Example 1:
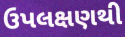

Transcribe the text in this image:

ઉપલક્ષણથી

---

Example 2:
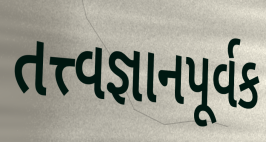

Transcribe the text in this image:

તત્ત્વજ્ઞાનપૂર્વક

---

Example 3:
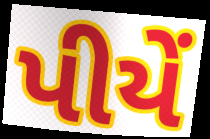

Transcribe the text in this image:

પીયેં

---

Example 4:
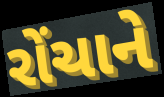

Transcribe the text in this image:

રોંચાને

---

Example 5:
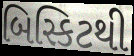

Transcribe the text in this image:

બિસ્કિટથી